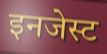
इनजेस्ट